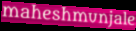
maheshmunjale